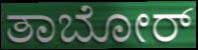
ತಾಬೋರ್